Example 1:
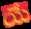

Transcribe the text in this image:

యే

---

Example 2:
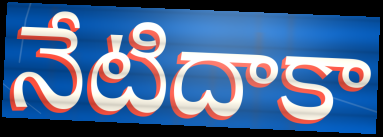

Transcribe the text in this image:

నేటిదాకా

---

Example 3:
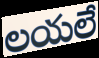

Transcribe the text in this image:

లయలే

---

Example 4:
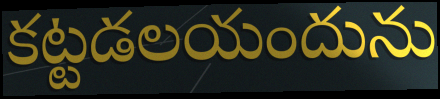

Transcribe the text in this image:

కట్టడలయందును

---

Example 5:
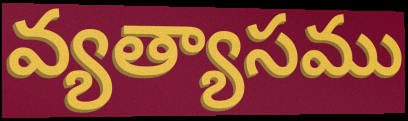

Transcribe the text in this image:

వ్యత్యాసము